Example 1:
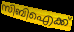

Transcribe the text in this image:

സിബിഐക്ക്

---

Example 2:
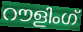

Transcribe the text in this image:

റൗളിംഗ്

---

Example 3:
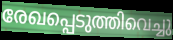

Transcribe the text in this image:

രേഖപ്പെടുത്തിവെച്ചു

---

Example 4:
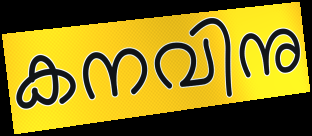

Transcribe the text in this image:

കനവിനു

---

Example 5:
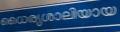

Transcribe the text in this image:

ധൈര്യശാലിയായ